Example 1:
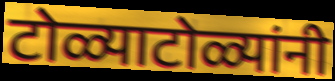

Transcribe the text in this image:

टोळ्याटोळ्यांनी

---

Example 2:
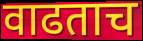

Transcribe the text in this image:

वाढताच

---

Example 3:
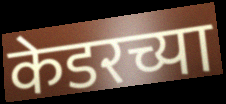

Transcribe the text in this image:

केडरच्या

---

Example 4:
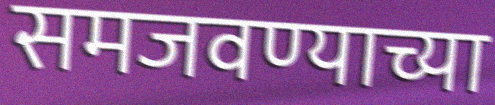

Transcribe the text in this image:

समजवण्याच्या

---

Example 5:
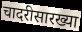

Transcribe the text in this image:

चादरीसारख्या